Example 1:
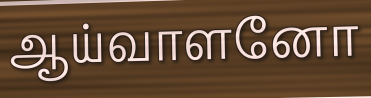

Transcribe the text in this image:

ஆய்வாளனோ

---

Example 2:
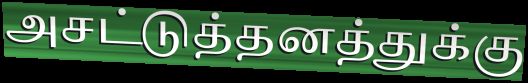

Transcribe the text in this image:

அசட்டுத்தனத்துக்கு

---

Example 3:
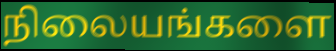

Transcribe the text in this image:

நிலையங்களை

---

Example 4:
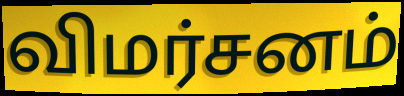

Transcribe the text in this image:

விமர்சனம்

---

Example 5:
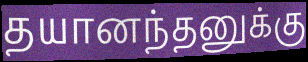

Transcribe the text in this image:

தயானந்தனுக்கு